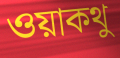
ওয়াকথু